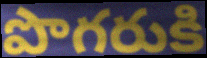
పొగరుకి